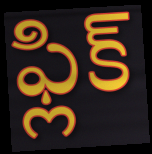
ఫ్లిక్